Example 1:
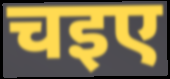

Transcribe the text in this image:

चइए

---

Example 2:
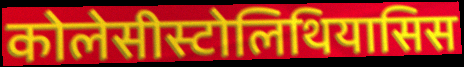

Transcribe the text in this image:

कोलेसीस्टोलिथियासिस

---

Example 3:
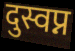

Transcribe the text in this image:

दुस्वप्न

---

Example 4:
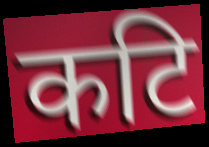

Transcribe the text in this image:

कटि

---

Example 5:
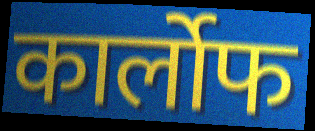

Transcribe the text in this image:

कार्लोफ